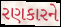
રણકારને